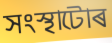
সংস্থাটোৰ